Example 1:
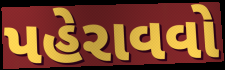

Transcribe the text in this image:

પહેરાવવો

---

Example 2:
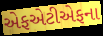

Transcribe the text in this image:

એફએટીએફના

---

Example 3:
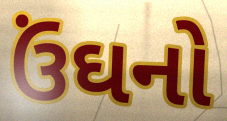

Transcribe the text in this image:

ઉંઘનો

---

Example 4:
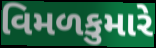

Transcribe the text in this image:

વિમળકુમારે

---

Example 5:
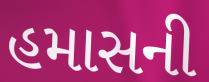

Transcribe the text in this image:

હમાસની